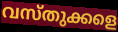
വസ്തുക്കളെ